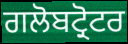
ਗਲੋਬਟ੍ਰੋਟਰ